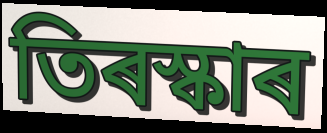
তিৰস্কাৰ